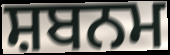
ਸ਼ਬਨਮ